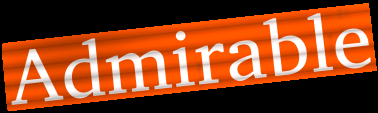
Admirable